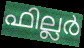
ഫില്ലർ